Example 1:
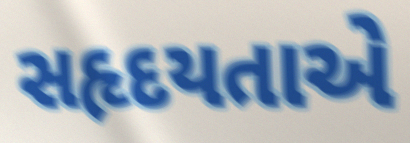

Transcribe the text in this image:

સહૃદયતાએ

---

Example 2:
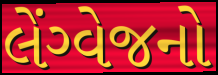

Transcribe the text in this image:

લેંગ્વેજનો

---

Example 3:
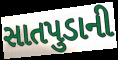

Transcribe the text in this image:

સાતપુડાની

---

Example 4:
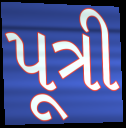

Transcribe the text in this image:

પૂત્રી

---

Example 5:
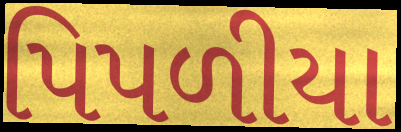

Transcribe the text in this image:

પિપળીયા